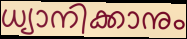
ധ്യാനിക്കാനും